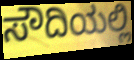
ಸೌದಿಯಲ್ಲಿ